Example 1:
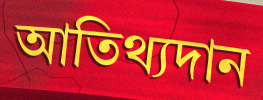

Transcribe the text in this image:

আতিথ্যদান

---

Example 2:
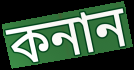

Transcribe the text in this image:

কনান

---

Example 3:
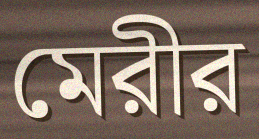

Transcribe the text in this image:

মেরীর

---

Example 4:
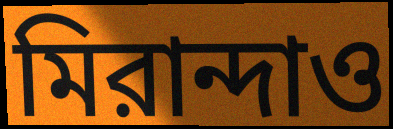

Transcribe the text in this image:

মিরান্দাও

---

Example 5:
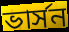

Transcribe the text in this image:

ভার্সন